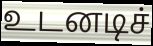
உடனடிச்